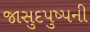
જાસુદપુષ્પની